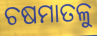
ଚଷମାତଳୁ